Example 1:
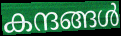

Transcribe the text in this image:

കന്ദങ്ങൾ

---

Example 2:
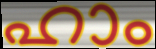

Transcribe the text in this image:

ഹാം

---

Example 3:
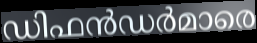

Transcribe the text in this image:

ഡിഫൻഡർമാരെ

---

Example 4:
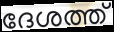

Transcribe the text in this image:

ദേശത്ത്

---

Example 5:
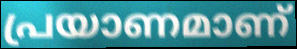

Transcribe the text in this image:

പ്രയാണമാണ്